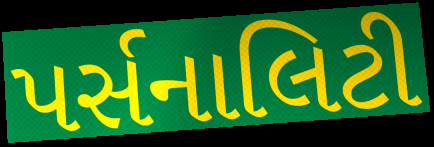
પર્સનાલિટી